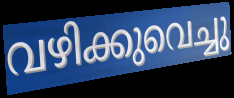
വഴിക്കുവെച്ചു